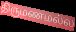
திருமணமல்ல